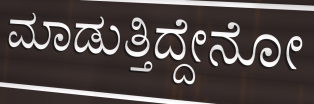
ಮಾಡುತ್ತಿದ್ದೇನೋ